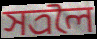
সত্ৰলৈ